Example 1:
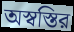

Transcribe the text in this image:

অস্বস্তির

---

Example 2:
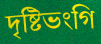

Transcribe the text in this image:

দৃষ্টিভংগি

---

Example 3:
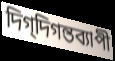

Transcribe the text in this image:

দিগ্‌দিগন্তব্যাপী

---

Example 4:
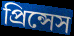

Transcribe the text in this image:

প্রিন্সেস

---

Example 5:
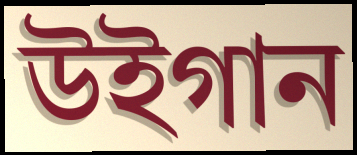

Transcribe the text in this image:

উইগান